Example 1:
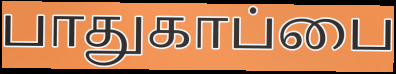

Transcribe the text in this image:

பாதுகாப்பை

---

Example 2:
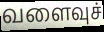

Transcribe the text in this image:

வளைவுச்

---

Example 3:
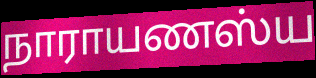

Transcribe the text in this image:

நாராயணஸ்ய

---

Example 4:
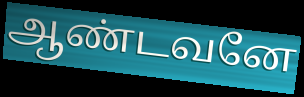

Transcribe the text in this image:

ஆண்டவனே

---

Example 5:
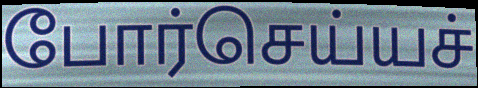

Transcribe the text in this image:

போர்செய்யச்